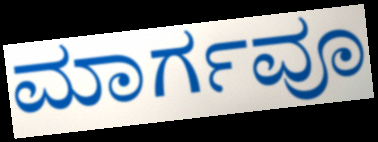
ಮಾರ್ಗವೂ